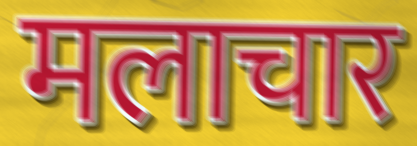
मलाचार